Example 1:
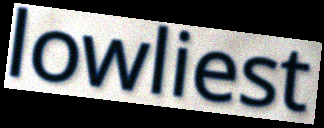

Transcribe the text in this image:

lowliest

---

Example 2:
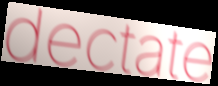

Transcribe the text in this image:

dectate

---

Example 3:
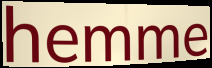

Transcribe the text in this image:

hemme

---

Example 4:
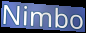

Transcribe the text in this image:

Nimbo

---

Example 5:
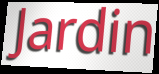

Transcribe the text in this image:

Jardin